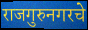
राजगुरुनगरचे